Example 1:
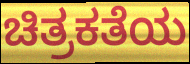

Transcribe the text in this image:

ಚಿತ್ರಕತೆಯ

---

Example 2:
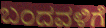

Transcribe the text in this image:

ಬಂದವಳಿಗೆ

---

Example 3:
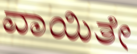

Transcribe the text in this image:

ವಾಯಿತೇ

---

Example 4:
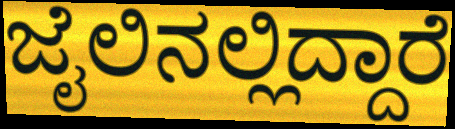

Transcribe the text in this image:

ಜೈಲಿನಲ್ಲಿದ್ದಾರೆ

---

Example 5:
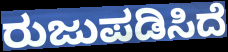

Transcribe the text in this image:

ರುಜುಪಡಿಸಿದೆ